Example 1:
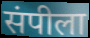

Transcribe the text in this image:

संपीला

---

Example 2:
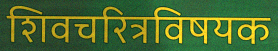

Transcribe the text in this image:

शिवचरित्रविषयक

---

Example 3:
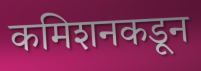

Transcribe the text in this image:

कमिशनकडून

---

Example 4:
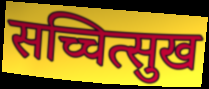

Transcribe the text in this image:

सच्चित्सुख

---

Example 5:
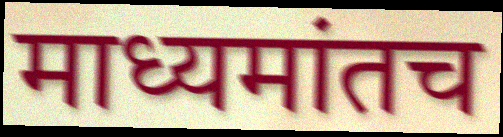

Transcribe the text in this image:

माध्यमांतच